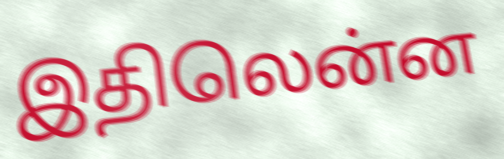
இதிலென்ன